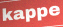
kappe